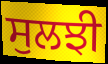
ਸੁਲਝੀ